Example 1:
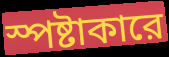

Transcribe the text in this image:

স্পষ্টাকারে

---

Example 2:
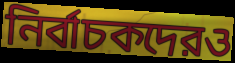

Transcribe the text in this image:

নির্বাচকদেরও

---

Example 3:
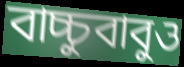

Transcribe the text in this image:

বাচ্চুবাবুও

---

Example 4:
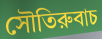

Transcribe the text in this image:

সৌতিরুবাচ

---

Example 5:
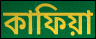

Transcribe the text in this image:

কাফিয়া